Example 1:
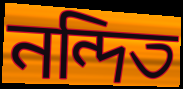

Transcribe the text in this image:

নন্দিত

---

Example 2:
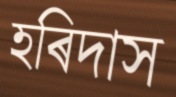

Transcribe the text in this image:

হৰিদাস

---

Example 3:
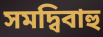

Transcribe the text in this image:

সমদ্বিবাহু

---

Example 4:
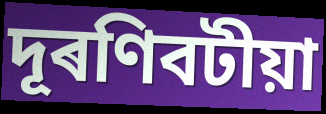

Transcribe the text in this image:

দূৰণিবটীয়া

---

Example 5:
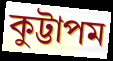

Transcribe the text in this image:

কুট্টাপম